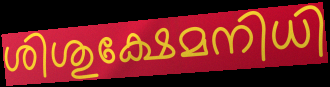
ശിശുക്ഷേമനിധി